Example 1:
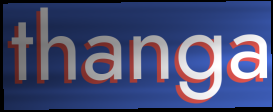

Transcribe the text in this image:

thanga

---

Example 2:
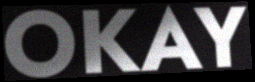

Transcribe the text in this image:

OKAY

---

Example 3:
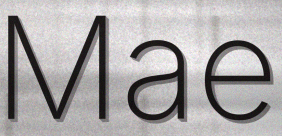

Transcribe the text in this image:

Mae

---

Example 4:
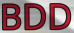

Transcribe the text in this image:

BDD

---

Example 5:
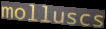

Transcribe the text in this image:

molluscs